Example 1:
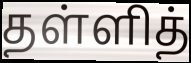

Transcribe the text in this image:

தள்ளித்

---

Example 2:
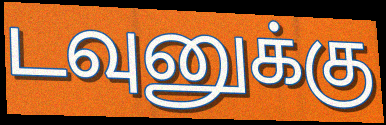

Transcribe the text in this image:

டவுனுக்கு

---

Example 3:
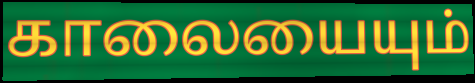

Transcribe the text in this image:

காலையையும்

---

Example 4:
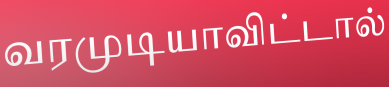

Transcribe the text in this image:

வரமுடியாவிட்டால்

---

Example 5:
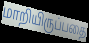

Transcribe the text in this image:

மாறியிருப்பதை